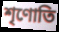
শৃণোতি